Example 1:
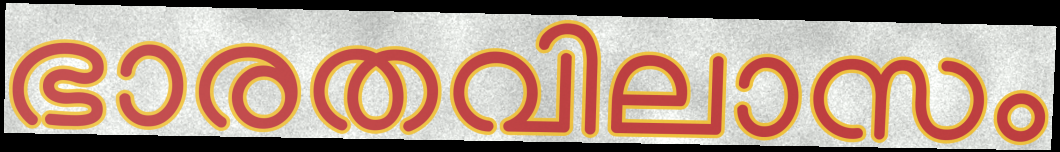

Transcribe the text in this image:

ഭാരതവിലാസം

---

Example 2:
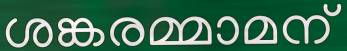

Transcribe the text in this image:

ശങ്കരമ്മാമന്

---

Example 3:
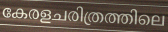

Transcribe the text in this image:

കേരളചരിത്രത്തിലെ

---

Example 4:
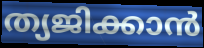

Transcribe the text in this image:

ത്യജിക്കാൻ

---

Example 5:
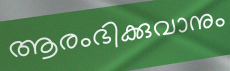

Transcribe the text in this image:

ആരംഭിക്കുവാനും